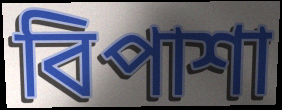
বিপাশা